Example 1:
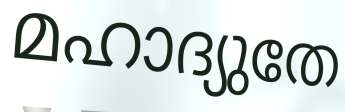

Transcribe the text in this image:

മഹാദ്യുതേ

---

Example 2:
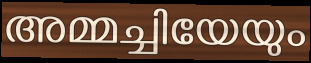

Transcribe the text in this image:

അമ്മച്ചിയേയും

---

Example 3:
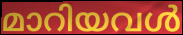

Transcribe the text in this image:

മാറിയവൾ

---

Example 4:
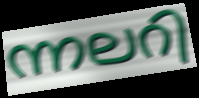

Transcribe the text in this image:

ന്നലറി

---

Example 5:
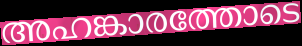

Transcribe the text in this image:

അഹങ്കാരത്തോടെ